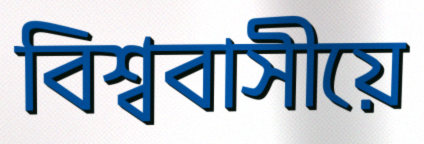
বিশ্ববাসীয়ে